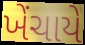
ખેંચાયે